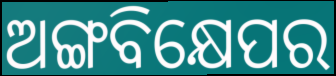
ଅଙ୍ଗବିକ୍ଷେପର